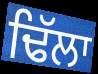
ਢਿੱਲਾ